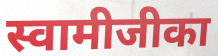
स्वामीजीका